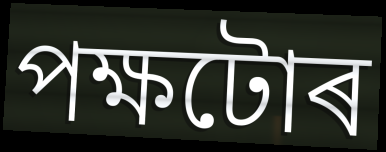
পক্ষটোৰ